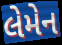
લેમેન